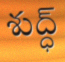
శుద్ధ్